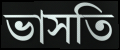
ভাসতি